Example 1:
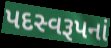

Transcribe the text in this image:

પદસ્વરૂપનાં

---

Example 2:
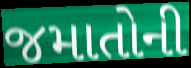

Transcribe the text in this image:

જમાતોની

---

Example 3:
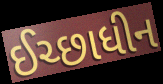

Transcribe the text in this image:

ઈચ્છાધીન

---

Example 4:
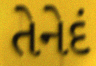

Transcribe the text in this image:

તેનેદં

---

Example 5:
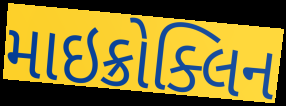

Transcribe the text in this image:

માઇક્રોક્લિન